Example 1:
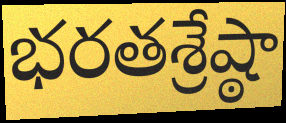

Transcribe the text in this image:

భరతశ్రేష్ఠా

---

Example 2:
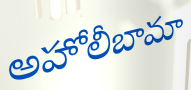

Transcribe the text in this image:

అహోలీబామా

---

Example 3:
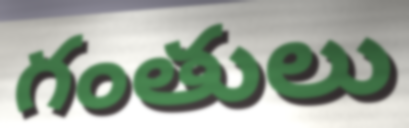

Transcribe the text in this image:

గంతులు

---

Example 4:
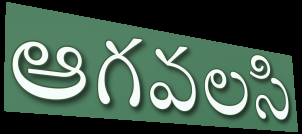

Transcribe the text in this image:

ఆగవలసి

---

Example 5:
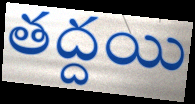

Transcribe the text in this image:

తద్దయి